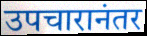
उपचारानंतर